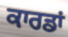
ਕਾਰਡਾਂ